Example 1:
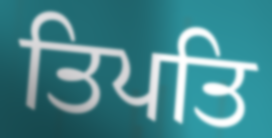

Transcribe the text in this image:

ਤਿਪਤਿ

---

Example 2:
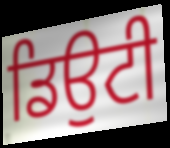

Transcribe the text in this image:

ਡਿਉਟੀ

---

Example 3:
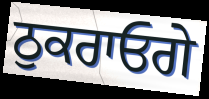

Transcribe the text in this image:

ਠੁਕਰਾਓਗੇ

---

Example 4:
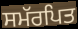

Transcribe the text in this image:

ਸਮੱਰਪਿਤ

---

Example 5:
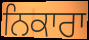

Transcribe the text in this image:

ਨਿਕਾਰਾ